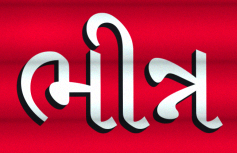
ભીન્ન